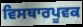
ਵਿਸਥਾਰਪੂਵਕ